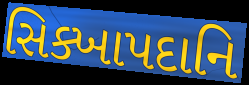
સિક્ખાપદાનિ